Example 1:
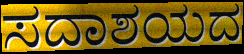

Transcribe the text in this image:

ಸದಾಶಯದ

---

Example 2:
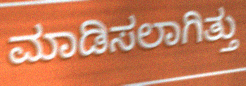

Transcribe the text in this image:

ಮಾಡಿಸಲಾಗಿತ್ತು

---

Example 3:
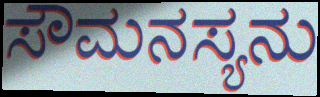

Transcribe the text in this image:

ಸೌಮನಸ್ಯನು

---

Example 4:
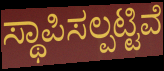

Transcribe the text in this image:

ಸ್ಥಾಪಿಸಲ್ಪಟ್ಟಿವೆ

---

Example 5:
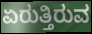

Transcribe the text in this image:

ಏರುತ್ತಿರುವ